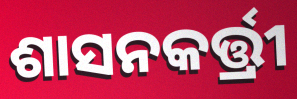
ଶାସନକର୍ତ୍ତ୍ରୀ